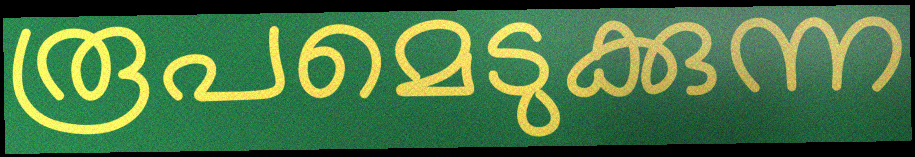
രൂപമെടുക്കുന്ന